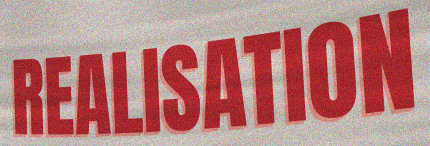
REALISATION